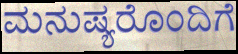
ಮನುಷ್ಯರೊಂದಿಗೆ